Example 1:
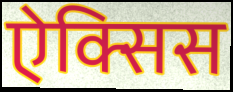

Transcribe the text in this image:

ऐक्सिस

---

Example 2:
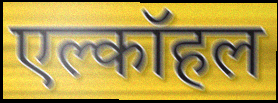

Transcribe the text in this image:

एल्कॉहल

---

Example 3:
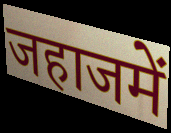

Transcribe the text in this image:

जहाजमें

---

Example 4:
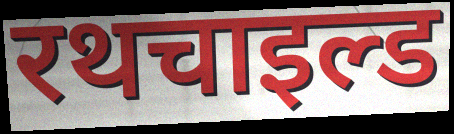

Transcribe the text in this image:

रथचाइल्ड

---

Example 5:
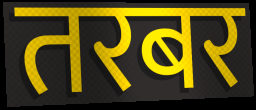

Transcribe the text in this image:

तरबर